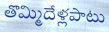
తొమ్మిదేళ్లపాటు